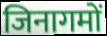
जिनागमों